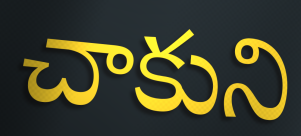
చాకుని